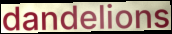
dandelions